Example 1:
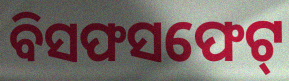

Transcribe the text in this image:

ବିସଫସଫେଟ୍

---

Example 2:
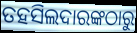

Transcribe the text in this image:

ତହସିଲଦାରଙ୍କଠାରୁ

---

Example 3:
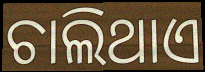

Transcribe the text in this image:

ଚାଲିଥାଏ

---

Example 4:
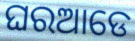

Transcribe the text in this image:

ଘରଆଡେ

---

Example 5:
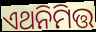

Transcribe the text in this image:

ଏଥନିମିତ୍ତ